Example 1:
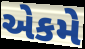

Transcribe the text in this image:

એકમે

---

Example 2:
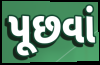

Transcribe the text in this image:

પૂછવાં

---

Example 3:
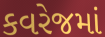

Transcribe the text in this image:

કવરેજમાં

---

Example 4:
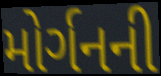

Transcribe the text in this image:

મોર્ગનની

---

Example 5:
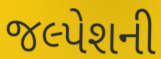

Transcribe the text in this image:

જલ્પેશની